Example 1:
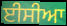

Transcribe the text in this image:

ਈਸੀਆ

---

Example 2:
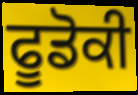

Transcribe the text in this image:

ਫੂਡੋਕੀ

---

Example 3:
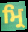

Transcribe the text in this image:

ਮ੍ਰਿ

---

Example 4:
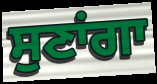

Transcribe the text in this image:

ਸੁਣਾਂਗਾ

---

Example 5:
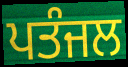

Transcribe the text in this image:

ਪਤੰਜਲ